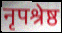
नृपश्रेष्ठ